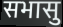
सभासु